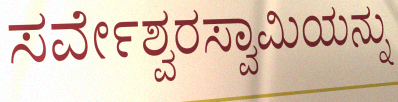
ಸರ್ವೇಶ್ವರಸ್ವಾಮಿಯನ್ನು